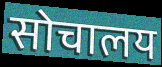
सोचालय